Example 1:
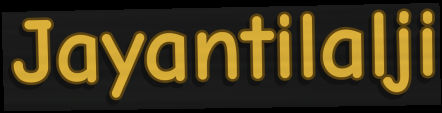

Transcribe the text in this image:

Jayantilalji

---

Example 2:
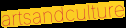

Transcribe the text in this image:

artsandculture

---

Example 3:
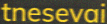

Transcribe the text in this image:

tnesevai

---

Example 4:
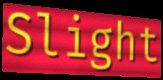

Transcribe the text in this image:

Slight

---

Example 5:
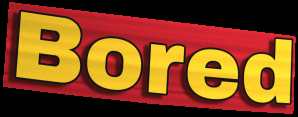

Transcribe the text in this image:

Bored